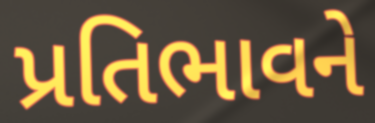
પ્રતિભાવને